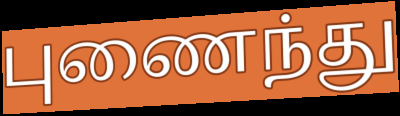
புணைந்து